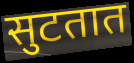
सुटतात